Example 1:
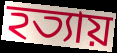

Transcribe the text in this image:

হত্যায়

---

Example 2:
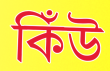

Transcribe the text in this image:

কিঁউ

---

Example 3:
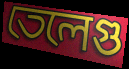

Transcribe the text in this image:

তেলেগু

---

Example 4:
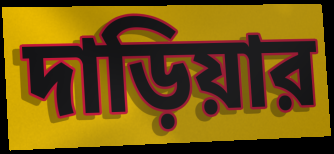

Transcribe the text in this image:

দাড়িয়ার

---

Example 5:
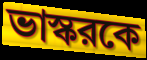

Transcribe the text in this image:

ভাস্করকে